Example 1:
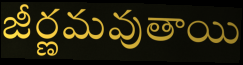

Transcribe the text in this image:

జీర్ణమవుతాయి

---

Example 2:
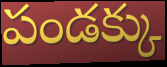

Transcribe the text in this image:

పండక్కు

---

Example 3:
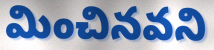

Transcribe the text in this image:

మించినవని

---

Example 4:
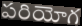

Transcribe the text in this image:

పరియోగ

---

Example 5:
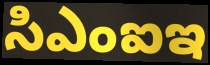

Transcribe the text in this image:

సిఎంఐఇ